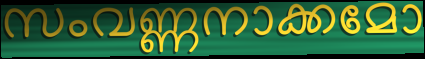
സംവണ്ണനാക്കമോ